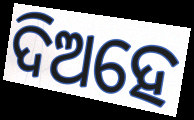
ଦିଅହେ